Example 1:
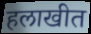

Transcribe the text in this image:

हलाखीत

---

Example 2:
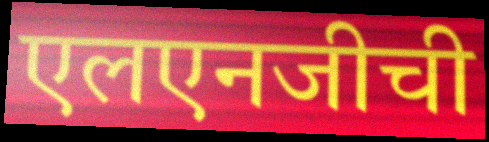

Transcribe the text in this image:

एलएनजीची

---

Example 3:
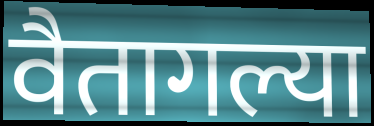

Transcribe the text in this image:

वैतागल्या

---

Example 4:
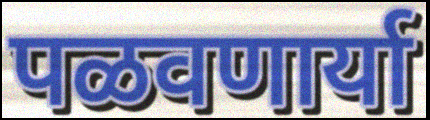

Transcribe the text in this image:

पळवणार्या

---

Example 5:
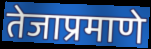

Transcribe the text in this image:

तेजाप्रमाणे